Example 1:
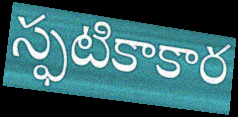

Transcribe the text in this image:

స్ఫటికాకార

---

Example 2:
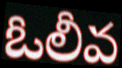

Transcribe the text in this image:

ఓలీవ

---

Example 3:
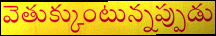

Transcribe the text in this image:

వెతుక్కుంటున్నప్పుడు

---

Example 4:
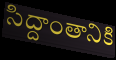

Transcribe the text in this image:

సిద్దాంతానికి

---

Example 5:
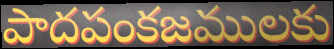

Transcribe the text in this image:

పాదపంకజములకు